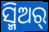
ସ୍ମିଅର୍